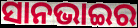
ସାନଭାଇର